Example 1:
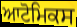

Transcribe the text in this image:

ਆਟੋਮਿਕਸ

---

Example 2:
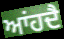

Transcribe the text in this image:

ਆਂਹਦੈ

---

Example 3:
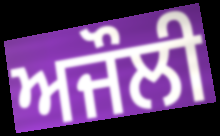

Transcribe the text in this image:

ਅਜੌਲੀ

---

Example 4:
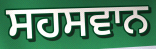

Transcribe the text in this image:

ਸਹਸਵਾਨ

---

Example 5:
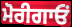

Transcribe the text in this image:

ਮੋਰੀਗਾਓਂ